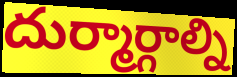
దుర్మార్గాల్ని